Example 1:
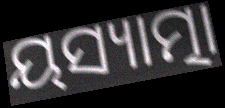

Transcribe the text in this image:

ୟସ୍ୟାତ୍ମା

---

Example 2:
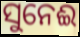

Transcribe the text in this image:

ସୁନେଈ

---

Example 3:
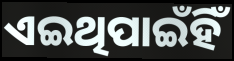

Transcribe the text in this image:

ଏଇଥିପାଇଁହିଁ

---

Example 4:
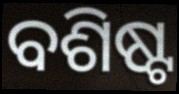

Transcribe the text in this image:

ବଶିଷ୍ଟ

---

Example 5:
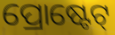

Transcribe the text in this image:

ପ୍ରୋଷ୍ଟେଟ୍